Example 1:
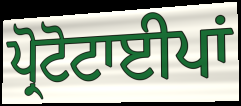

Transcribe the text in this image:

ਪ੍ਰੋਟੋਟਾਈਪਾਂ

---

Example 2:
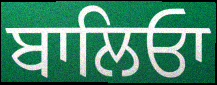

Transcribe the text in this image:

ਬਾਲਿਓਾ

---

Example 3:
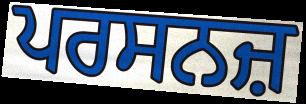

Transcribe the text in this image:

ਪਰਸਨਜ਼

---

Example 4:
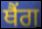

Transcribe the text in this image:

ਥੈਂਗ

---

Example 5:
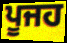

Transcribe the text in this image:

ਪੂਜਹ